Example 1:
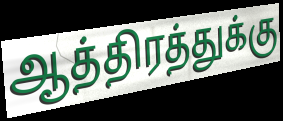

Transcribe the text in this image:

ஆத்திரத்துக்கு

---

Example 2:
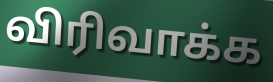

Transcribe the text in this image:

விரிவாக்க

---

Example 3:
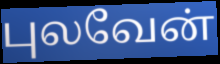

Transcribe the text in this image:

புலவேன்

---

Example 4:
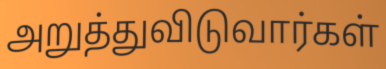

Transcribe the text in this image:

அறுத்துவிடுவார்கள்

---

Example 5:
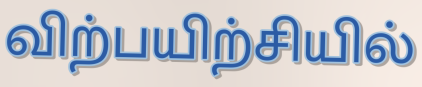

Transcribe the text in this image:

விற்பயிற்சியில்